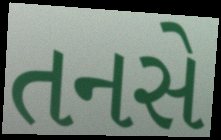
તનસે